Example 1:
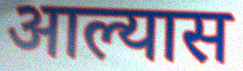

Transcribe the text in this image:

आल्यास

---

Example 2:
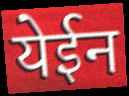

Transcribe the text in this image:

येईन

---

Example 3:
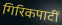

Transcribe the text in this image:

गिरिकपाटीं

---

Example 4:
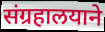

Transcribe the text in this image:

संग्रहालयाने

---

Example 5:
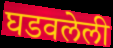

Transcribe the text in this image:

घडवलेली